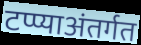
टप्प्याअंतर्गत